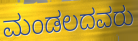
ಮಂಡಲದವರು